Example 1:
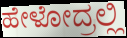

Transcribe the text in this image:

ಹೇಳೋದ್ರಲ್ಲಿ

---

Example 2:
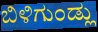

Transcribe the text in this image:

ಬಿಳಿಗುಂಡ್ಲು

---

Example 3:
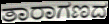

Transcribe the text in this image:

ತಾರಾಗಣದ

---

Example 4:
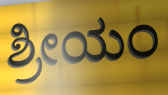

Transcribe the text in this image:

ಶ್ರೀಯಂ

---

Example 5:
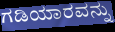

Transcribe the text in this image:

ಗಡಿಯಾರವನ್ನು